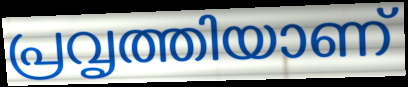
പ്രവൃത്തിയാണ്